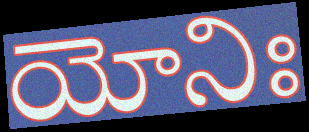
యోనిః